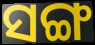
ସଙ୍ଗ